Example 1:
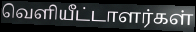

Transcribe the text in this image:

வெளியீட்டாளர்கள்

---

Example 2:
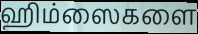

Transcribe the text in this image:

ஹிம்ஸைகளை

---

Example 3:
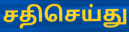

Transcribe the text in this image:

சதிசெய்து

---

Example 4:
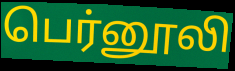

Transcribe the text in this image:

பெர்னூலி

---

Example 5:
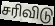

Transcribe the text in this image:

சரிவிடு